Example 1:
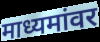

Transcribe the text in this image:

माध्यमांवर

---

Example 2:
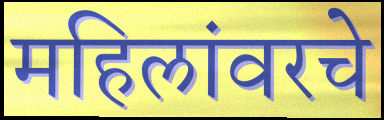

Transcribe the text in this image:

महिलांवरचे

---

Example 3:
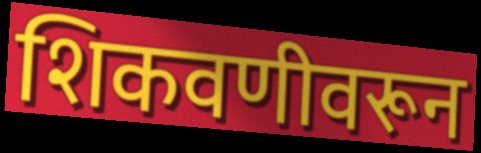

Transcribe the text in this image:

शिकवणीवरून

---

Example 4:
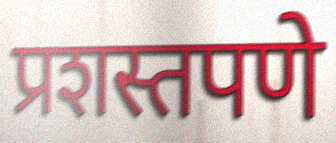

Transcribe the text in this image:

प्रशस्तपणे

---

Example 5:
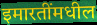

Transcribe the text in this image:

इमारतींमधील